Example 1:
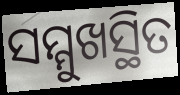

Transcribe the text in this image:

ସମ୍ମୁଖସ୍ଥିତ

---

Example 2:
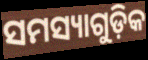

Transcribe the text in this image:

ସମସ୍ୟାଗୁଡ଼ିକ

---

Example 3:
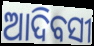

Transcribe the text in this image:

ଆଦିବସୀ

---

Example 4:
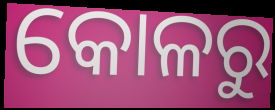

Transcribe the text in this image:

କୋଳରୁ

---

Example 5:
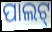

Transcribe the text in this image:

ପାଲଟ୍